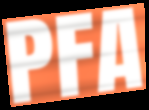
PFA